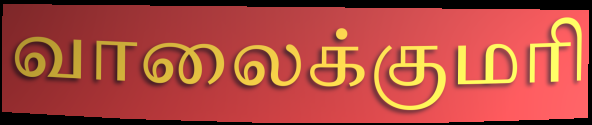
வாலைக்குமரி